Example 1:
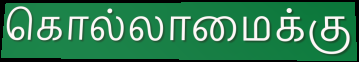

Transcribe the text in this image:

கொல்லாமைக்கு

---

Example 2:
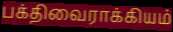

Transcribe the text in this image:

பக்திவைராக்கியம்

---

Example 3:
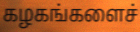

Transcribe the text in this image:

கழகங்களைச்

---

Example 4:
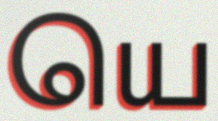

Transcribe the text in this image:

யெ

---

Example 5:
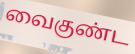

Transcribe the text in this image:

வைகுண்ட